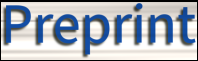
Preprint